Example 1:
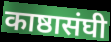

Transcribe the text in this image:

काष्ठासंघी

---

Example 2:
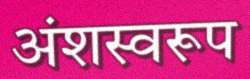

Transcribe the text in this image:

अंशस्वरूप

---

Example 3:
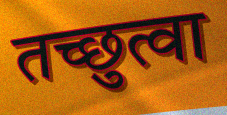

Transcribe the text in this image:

तच्छुत्वा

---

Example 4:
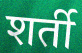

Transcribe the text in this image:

शर्ती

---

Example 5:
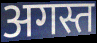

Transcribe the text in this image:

अगस्त